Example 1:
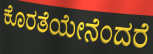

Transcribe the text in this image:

ಕೊರತೆಯೇನೆಂದರೆ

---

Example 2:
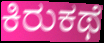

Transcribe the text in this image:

ಕಿರುಕಥೆ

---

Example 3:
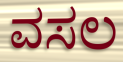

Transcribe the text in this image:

ವಸಲ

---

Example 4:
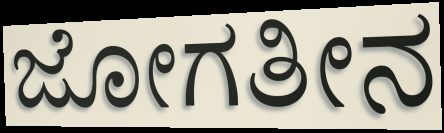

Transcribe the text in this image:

ಜೋಗತೀನ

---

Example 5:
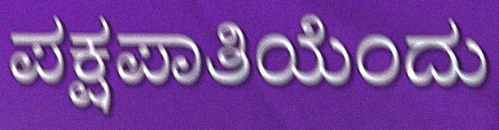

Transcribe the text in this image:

ಪಕ್ಷಪಾತಿಯೆಂದು